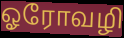
ஓரோவழி